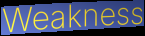
Weakness